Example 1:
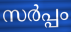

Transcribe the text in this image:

സർപ്പം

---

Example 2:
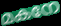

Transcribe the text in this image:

മകനേ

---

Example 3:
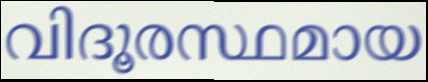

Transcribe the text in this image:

വിദൂരസ്ഥമായ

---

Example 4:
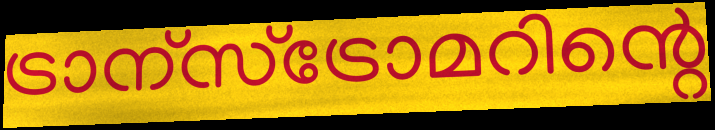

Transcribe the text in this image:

ട്രാന്സ്ട്രോമറിന്റെ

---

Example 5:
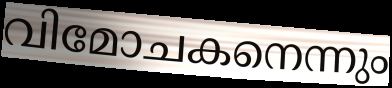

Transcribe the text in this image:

വിമോചകനെന്നും